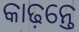
କାଢ଼ନ୍ତେ